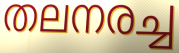
തലനരച്ച